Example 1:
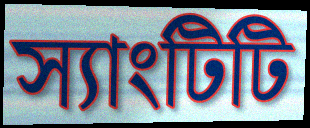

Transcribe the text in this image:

স্যাংটিটি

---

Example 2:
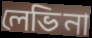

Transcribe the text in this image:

লেভিনা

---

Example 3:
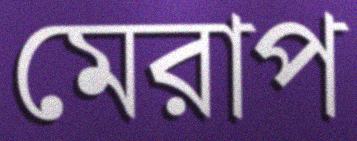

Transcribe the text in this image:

মেরাপ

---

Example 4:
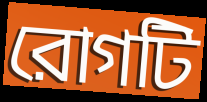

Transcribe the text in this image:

রোগটি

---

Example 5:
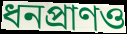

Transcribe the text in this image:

ধনপ্রাণও